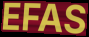
EFAS